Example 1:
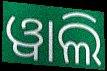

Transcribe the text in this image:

ୱାଲି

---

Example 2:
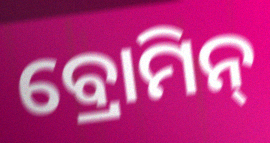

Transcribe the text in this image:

ବ୍ରୋମିନ୍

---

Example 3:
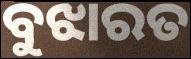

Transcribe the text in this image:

ବୁଝାରତ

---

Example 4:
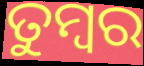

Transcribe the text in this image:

ତୁମ୍ବର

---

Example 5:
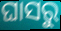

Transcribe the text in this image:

ଘାସରୁ